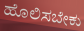
ಹೊಲಿಸಬೇಕು